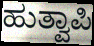
ಹುತ್ವಾಪಿ